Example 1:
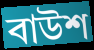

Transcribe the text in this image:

বাউশ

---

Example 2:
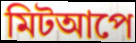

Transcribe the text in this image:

মিটআপে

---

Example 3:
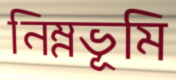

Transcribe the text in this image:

নিম্নভূমি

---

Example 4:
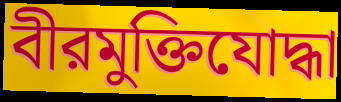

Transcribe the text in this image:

বীরমুক্তিযোদ্ধা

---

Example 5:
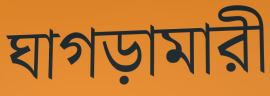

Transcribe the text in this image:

ঘাগড়ামারী